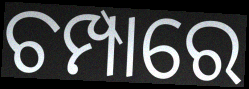
ଚମ୍ପାରେ